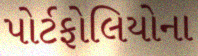
પોર્ટફોલિયોના